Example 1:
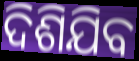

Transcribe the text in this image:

ଦିଶିଯିବ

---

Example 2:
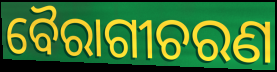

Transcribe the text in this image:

ବୈରାଗୀଚରଣ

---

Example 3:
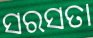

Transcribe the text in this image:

ସରସତା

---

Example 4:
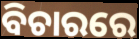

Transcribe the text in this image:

ବିଚାରରେ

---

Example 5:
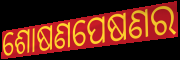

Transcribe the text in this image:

ଶୋଷଣପେଷଣର